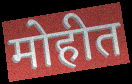
मोहीत